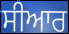
ਸੀਆਰ